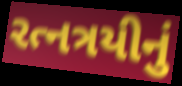
રત્નત્રયીનું